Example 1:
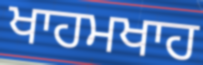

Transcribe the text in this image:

ਖਾਹਮਖਾਹ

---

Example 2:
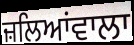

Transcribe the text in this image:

ਜ਼ਲਿਆਂਵਾਲਾ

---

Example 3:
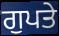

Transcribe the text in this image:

ਗੁਪਤੇ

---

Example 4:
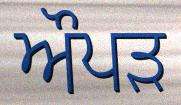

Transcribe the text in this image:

ਔਪੜ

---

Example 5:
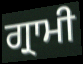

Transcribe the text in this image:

ਗ੍ਰਾਮੀ